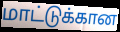
மாட்டுக்கான